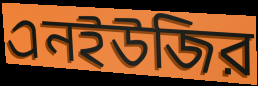
এনইউজির